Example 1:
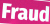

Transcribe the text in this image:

Fraud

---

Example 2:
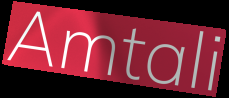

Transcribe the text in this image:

Amtali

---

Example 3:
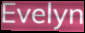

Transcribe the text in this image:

Evelyn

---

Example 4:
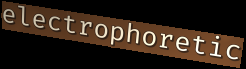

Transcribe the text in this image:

electrophoretic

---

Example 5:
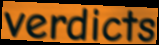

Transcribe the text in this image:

verdicts